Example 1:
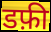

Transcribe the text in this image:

डफ़ी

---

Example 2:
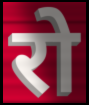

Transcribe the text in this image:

रो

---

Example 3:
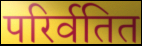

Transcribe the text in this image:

परिर्वतित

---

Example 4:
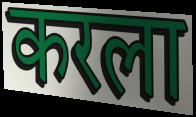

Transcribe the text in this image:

करला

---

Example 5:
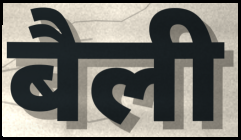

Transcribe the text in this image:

बैली